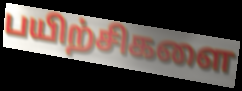
பயிற்சிகளை